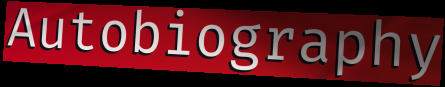
Autobiography